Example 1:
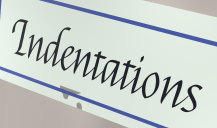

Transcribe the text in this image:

Indentations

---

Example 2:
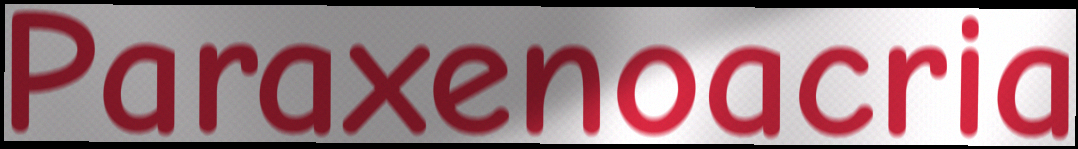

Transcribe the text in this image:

Paraxenoacria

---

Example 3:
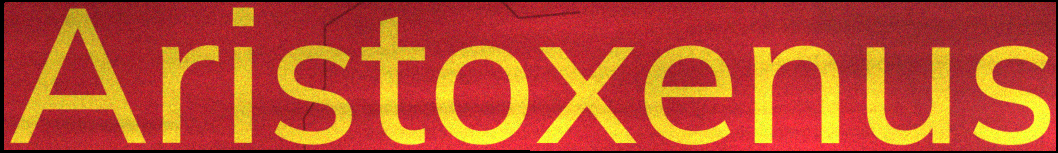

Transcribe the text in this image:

Aristoxenus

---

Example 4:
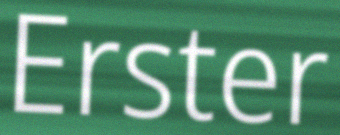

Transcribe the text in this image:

Erster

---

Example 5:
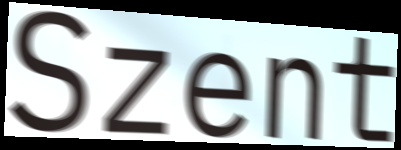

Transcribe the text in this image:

Szent